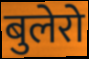
बुलेरो